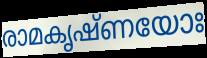
രാമകൃഷ്ണയോഃ